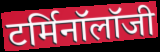
टर्मिनॉलॉजी